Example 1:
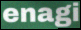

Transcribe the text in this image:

enagi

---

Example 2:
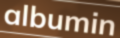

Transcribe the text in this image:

albumin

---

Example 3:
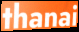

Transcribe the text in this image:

thanai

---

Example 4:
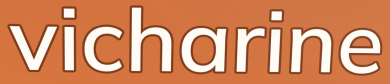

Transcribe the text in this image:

vicharine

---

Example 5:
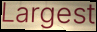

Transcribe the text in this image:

Largest